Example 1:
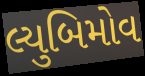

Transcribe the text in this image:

લ્યુબિમોવ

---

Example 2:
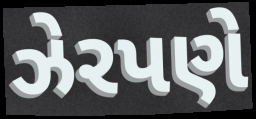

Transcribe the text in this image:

ઝેરપણે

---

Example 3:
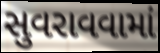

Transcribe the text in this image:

સુવરાવવામાં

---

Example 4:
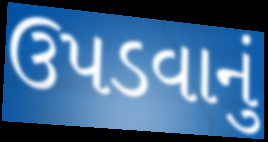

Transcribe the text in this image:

ઉપડવાનું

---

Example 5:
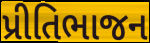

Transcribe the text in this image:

પ્રીતિભાજન